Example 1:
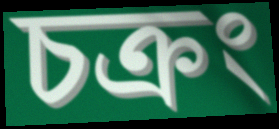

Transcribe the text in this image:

চক্রং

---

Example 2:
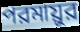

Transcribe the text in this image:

পরমায়ুর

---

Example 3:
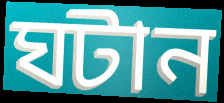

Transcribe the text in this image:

ঘটান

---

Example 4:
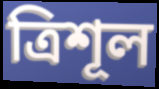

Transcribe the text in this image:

ত্রিশূল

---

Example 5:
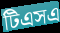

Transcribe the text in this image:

টিএসএ